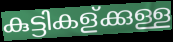
കുട്ടികള്ക്കുള്ള